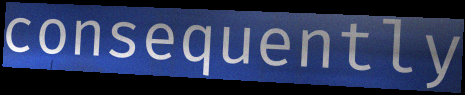
consequently